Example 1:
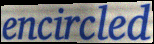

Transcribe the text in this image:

encircled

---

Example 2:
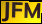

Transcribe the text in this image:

JFM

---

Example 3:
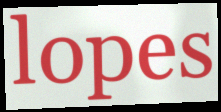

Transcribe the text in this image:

lopes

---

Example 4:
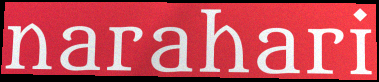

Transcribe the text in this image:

narahari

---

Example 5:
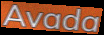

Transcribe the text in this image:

Avada